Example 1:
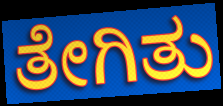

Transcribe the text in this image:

ತೇಗಿತು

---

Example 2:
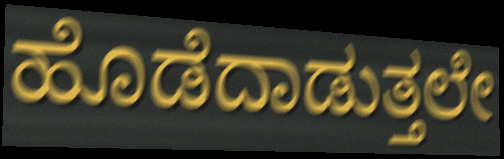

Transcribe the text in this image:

ಹೊಡೆದಾಡುತ್ತಲೇ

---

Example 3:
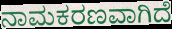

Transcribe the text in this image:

ನಾಮಕರಣವಾಗಿದೆ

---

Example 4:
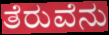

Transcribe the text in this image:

ತೆರುವೆನು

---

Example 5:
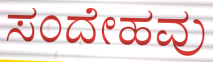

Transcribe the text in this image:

ಸಂದೇಹವು